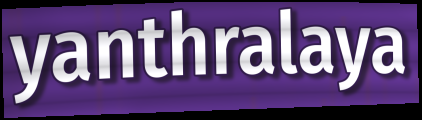
yanthralaya